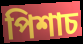
পিশাচ